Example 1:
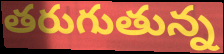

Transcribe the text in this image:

తరుగుతున్న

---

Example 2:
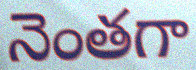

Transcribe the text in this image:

నెంతగా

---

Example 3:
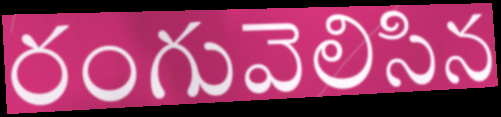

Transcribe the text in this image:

రంగువెలిసిన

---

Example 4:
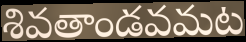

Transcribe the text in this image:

శివతాండవమట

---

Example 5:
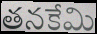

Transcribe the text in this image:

తనకేమి